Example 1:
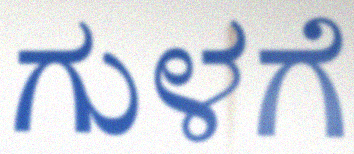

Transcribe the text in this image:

ಗುಳಗೆ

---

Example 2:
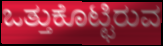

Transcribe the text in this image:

ಒತ್ತುಕೊಟ್ಟಿರುವ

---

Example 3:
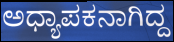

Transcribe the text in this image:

ಅಧ್ಯಾಪಕನಾಗಿದ್ದ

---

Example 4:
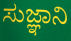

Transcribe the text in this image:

ಸುಜ್ಞಾನಿ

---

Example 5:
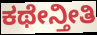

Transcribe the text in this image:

ಕಥೇನ್ತೀತಿ